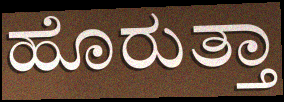
ಹೊರುತ್ತಾ